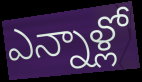
ఎన్నాళ్లో